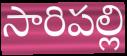
సారిపల్లి